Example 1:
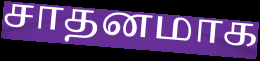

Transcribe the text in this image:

சாதனமாக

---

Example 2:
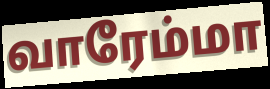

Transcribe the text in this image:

வாரேம்மா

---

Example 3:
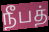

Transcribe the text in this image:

நீபத்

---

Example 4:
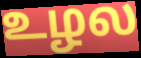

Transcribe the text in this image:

உழல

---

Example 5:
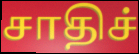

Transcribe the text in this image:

சாதிச்